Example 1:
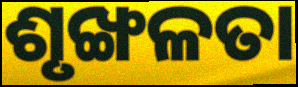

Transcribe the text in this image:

ଶୃଙ୍ଖଳତା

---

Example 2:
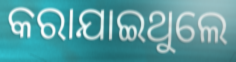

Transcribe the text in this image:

କରାଯାଇଥୁଲେ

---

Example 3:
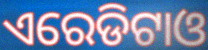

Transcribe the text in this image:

ଏରେଡିଟାଓ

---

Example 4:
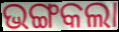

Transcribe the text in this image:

ଭଙ୍ଗକଲା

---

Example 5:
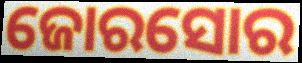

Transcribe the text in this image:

ଜୋରସୋର